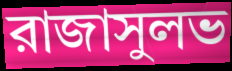
রাজাসুলভ